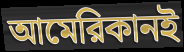
আমেরিকানই